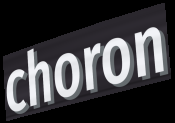
choron